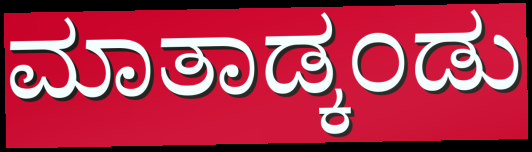
ಮಾತಾಡ್ಕಂಡು